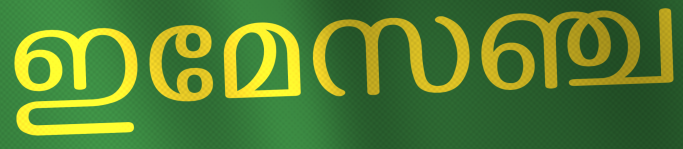
ഇമേസഞ്ച